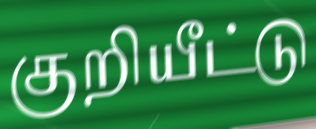
குறியீட்டு